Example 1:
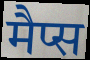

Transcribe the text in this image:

मैप्स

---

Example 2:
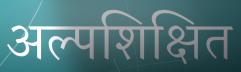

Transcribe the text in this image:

अल्पशिक्षित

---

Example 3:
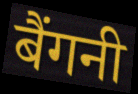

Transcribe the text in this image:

बैंगनी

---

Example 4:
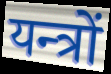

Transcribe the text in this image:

यन्त्रों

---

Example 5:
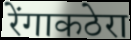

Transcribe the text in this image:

रेंगाकठेरा